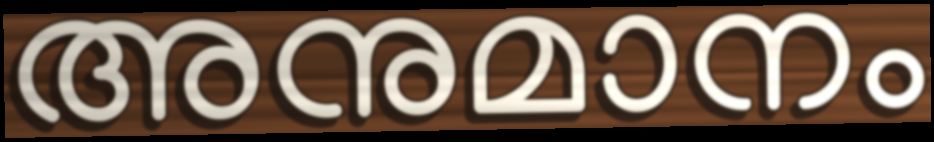
അനുമാനം